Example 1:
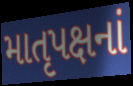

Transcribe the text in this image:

માતૃપક્ષનાં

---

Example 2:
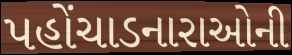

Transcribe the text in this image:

પહોંચાડનારાઓની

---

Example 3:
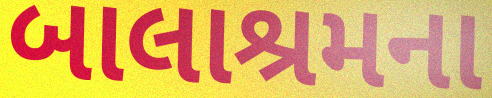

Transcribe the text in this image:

બાલાશ્રમના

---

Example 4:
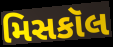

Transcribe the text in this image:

મિસકૉલ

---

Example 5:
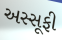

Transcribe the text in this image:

અસ્સૂફી